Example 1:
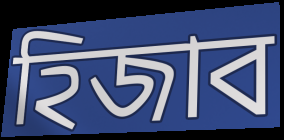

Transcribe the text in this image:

হিজাব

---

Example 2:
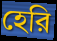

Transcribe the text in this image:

হেরি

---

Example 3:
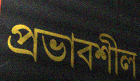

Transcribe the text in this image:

প্রভাবশীল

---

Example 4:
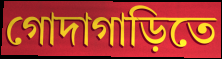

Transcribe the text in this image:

গোদাগাড়িতে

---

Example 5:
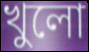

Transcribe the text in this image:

খুলো